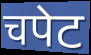
चपेट